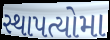
સ્થાપત્યોમા